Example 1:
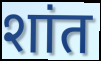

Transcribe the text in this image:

शांत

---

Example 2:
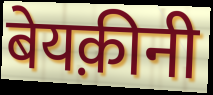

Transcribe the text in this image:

बेयक़ीनी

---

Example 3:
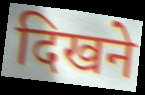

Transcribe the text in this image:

दिखने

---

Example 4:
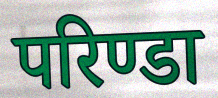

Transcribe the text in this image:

परिण्डा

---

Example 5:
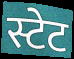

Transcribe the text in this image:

स्टेट